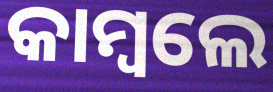
କାମ୍ବଲେ